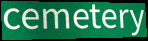
cemetery